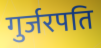
गुर्जरपति